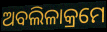
ଅବଲିଳାକ୍ରମେ